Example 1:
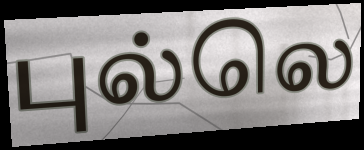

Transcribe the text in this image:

புல்லெ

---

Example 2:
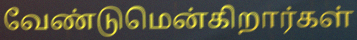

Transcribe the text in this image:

வேண்டுமென்கிறார்கள்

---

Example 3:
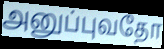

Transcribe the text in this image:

அனுப்புவதோ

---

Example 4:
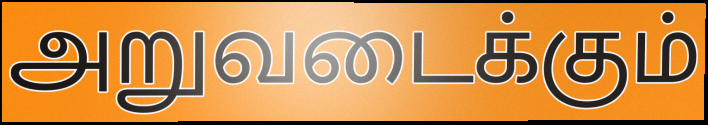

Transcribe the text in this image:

அறுவடைக்கும்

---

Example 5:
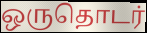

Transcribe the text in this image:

ஒருதொடர்